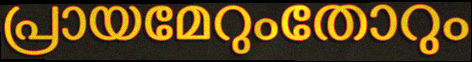
പ്രായമേറുംതോറും